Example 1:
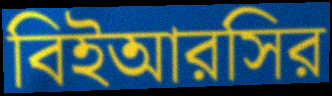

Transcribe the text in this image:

বিইআরসির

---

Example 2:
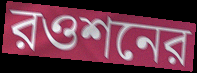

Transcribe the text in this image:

রওশনের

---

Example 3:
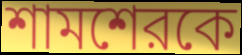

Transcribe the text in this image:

শামশেরকে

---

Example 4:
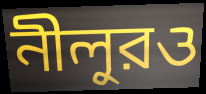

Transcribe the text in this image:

নীলুরও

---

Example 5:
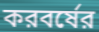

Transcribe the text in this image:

করবর্ষের